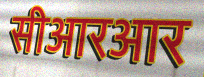
सीआरआर